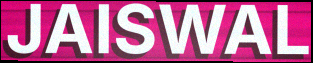
JAISWAL